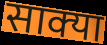
साक्या